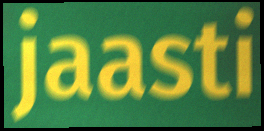
jaasti